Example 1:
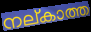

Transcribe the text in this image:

നല്കാത്ത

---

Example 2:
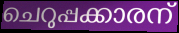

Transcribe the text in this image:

ചെറുപ്പക്കാരന്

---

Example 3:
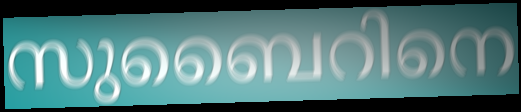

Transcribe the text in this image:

സുബൈറിനെ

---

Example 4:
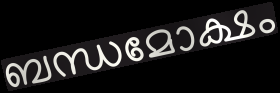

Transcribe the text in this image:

ബന്ധമോക്ഷം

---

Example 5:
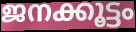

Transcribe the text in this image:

ജനക്കൂട്ടം